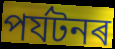
পৰ্যটনৰ